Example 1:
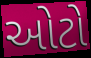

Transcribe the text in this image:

ઓટો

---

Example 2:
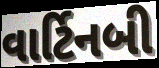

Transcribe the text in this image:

વાર્ટિનબી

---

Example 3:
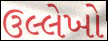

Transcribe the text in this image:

ઉલ્લેખો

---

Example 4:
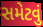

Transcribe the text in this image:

સમેટવું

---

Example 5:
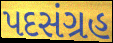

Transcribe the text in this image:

પદસંગ્રહ